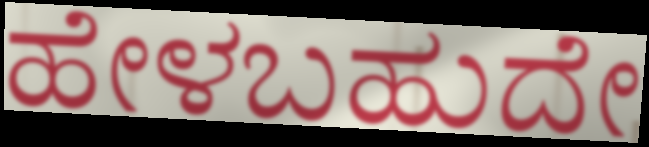
ಹೇಳಬಹುದೇ